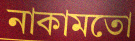
নাকামতো